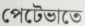
পেটেভাতে